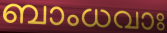
ബാംധവാഃ